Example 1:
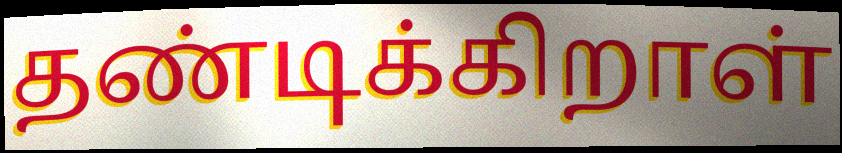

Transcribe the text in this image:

தண்டிக்கிறாள்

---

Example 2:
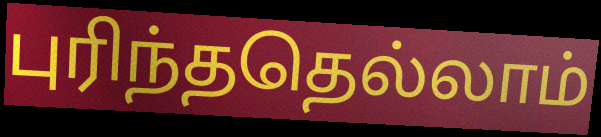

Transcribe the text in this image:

புரிந்ததெல்லாம்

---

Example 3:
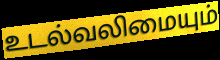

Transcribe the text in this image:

உடல்வலிமையும்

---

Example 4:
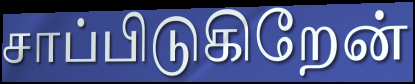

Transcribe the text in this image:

சாப்பிடுகிறேன்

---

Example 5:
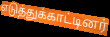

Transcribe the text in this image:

எடுத்துக்காட்டினர்